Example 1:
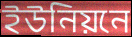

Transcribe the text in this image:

ইউনিয়নে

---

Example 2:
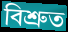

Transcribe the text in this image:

বিশ্রুত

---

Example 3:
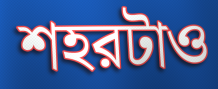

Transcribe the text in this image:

শহরটাও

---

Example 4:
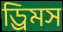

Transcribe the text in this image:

ড্রিমস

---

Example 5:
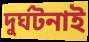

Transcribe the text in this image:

দুর্ঘটনাই